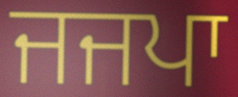
ਜਜਪਾ